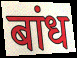
बांध